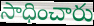
సాధించారు